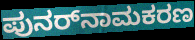
ಪುನರ್‌ನಾಮಕರಣ